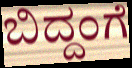
ಬಿದ್ದಂಗೆ